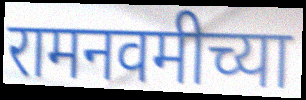
रामनवमीच्या